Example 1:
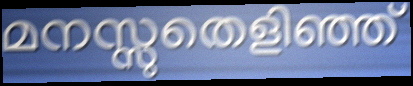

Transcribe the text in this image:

മനസ്സുതെളിഞ്ഞ്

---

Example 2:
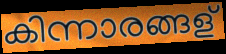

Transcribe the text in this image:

കിന്നാരങ്ങള്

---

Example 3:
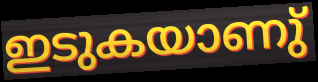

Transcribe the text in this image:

ഇടുകയാണു്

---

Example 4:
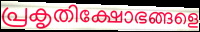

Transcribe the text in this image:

പ്രകൃതിക്ഷോഭങ്ങളെ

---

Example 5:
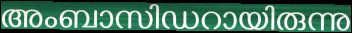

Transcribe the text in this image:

അംബാസിഡറായിരുന്നു